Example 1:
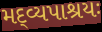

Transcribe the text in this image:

મદ્વ્યપાશ્રયઃ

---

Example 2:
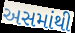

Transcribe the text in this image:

અસમાંથી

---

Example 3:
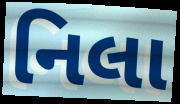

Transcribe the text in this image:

નિલા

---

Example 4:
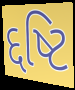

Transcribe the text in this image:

દ્દષ્ટિ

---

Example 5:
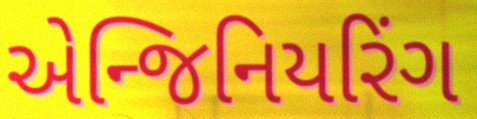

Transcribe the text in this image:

એન્જિનિયરિંગ